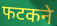
फटकने